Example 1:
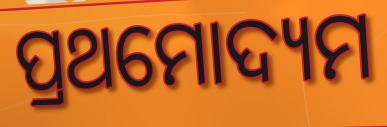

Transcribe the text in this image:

ପ୍ରଥମୋଦ୍ୟମ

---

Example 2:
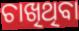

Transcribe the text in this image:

ଚାଖିଥିବା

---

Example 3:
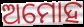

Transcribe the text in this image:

ଅମୋହ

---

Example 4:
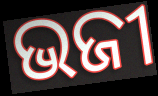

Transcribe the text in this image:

ଭଜୀ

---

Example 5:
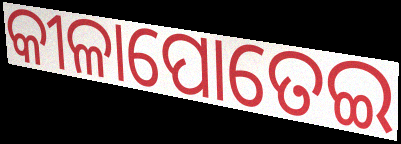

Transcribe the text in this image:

କୀଳାପୋତେଇ